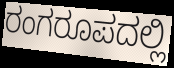
ರಂಗರೂಪದಲ್ಲಿ